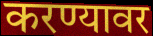
करण्यावर